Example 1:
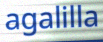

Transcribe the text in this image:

agalilla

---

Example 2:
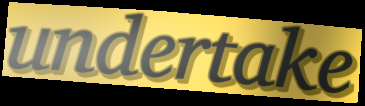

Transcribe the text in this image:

undertake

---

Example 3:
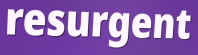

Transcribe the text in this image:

resurgent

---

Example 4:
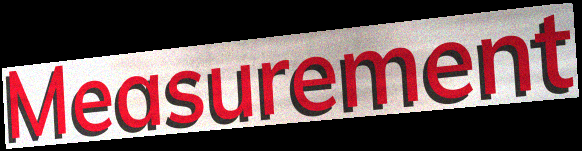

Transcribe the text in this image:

Measurement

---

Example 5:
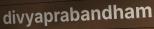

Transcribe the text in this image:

divyaprabandham